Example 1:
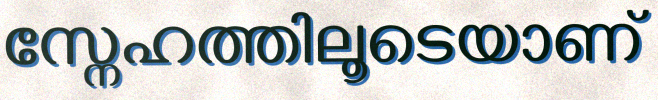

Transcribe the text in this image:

സ്നേഹത്തിലൂടെയാണ്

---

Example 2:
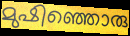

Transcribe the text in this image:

മുഷിഞ്ഞൊരു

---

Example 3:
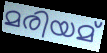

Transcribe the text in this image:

മരിയമ്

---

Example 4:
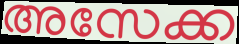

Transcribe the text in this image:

അസേക്ക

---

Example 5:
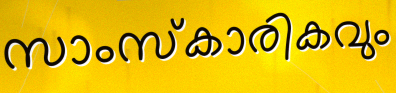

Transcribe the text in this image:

സാംസ്കാരികവും